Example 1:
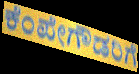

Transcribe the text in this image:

ಕೆಂಪೇಗೌಡರಿಗೆ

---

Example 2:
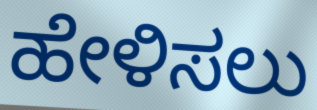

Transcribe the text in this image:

ಹೇಳಿಸಲು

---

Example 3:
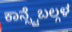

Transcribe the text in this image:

ಕಾನ್ಸ್ಟೆಬಲ್ಗಳ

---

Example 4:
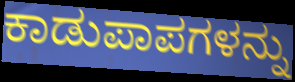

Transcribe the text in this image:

ಕಾಡುಪಾಪಗಳನ್ನು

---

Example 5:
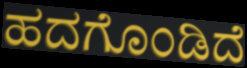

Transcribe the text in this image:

ಹದಗೊಂಡಿದೆ